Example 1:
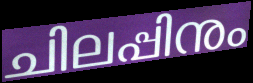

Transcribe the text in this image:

ചിലപ്പിനും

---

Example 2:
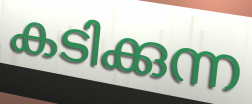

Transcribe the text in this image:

കടിക്കുന്ന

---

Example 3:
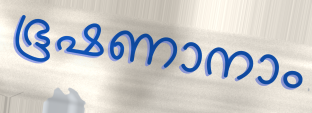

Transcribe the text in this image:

ഭൂഷണാനാം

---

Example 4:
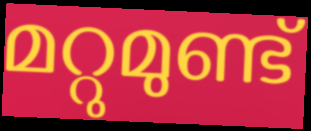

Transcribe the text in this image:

മറ്റുമുണ്ട്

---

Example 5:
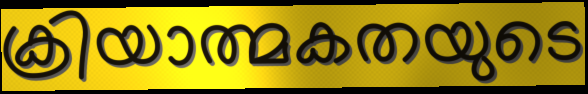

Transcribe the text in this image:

ക്രിയാത്മകതയുടെ